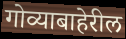
गोव्याबाहेरील